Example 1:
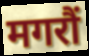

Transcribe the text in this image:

मगरौं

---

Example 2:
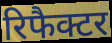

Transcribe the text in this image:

रिफैक्टर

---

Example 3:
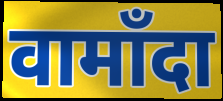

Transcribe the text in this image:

वामाँदा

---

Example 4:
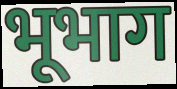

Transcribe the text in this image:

भूभाग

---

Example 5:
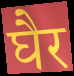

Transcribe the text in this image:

घैर